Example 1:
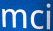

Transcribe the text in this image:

mci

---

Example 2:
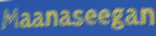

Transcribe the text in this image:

Maanaseegan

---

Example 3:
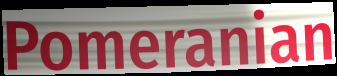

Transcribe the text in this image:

Pomeranian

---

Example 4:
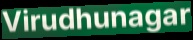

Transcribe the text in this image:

Virudhunagar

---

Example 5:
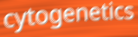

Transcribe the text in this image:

cytogenetics